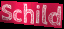
Schild